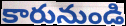
కారునుండి